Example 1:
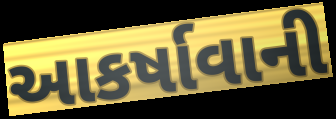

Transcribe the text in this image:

આકર્ષાવાની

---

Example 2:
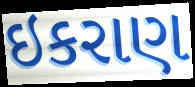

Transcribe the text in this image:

ઇકરાણ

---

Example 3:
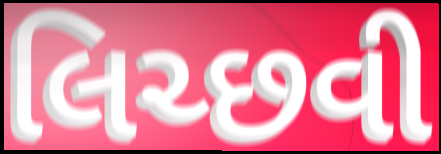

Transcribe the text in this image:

લિચ્છવી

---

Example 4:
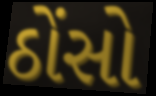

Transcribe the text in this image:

ઠોંસો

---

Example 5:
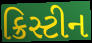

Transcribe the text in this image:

ક્રિસ્ટીન